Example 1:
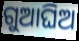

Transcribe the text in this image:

ଗୁଆଘିଅ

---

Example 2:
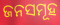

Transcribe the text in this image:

ଜନସମୂହ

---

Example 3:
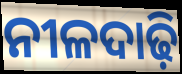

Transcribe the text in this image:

ନୀଳଦାଢ଼ି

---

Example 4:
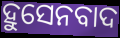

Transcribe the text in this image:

ହୁସେନବାଦ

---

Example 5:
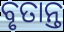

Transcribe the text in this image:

ବୃତାନ୍ତ